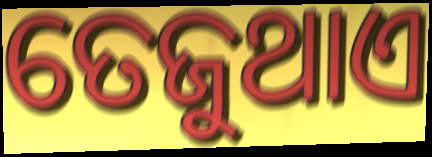
ତେଜୁଥାଏ